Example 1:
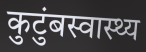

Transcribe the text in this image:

कुटुंबस्वास्थ्य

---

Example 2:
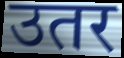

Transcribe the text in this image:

उतर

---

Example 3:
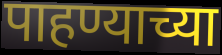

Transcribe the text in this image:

पाहण्याच्या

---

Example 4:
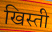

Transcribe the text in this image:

खिस्ती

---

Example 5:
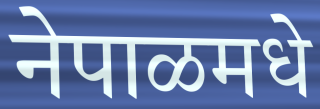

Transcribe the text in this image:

नेपाळमधे